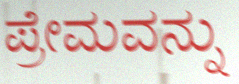
ಪ್ರೇಮವನ್ನು